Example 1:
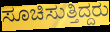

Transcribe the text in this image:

ಸೂಚಿಸುತ್ತಿದ್ದರು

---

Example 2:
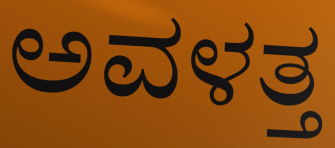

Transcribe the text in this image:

ಅವಳತ್ತ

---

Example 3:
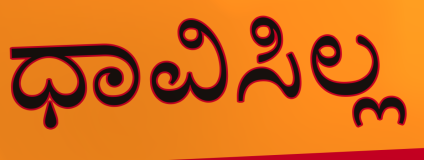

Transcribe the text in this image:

ಧಾವಿಸಿಲ್ಲ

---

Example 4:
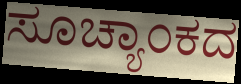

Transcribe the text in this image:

ಸೂಚ್ಯಾಂಕದ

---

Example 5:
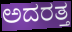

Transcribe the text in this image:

ಅದರತ್ತ